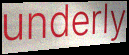
underly